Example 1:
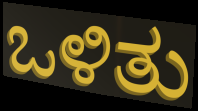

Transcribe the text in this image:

ಒಳಿತು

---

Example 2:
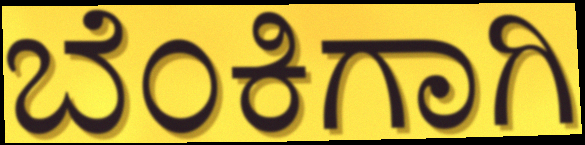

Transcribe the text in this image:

ಬೆಂಕಿಗಾಗಿ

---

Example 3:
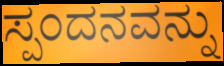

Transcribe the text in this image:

ಸ್ಪಂದನವನ್ನು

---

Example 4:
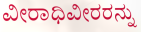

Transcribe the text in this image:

ವೀರಾಧಿವೀರರನ್ನು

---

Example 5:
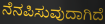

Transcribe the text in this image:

ನೆನಪಿಸುವುದಾಗಿದೆ